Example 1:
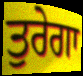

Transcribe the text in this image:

ਤੁਰੇਗਾ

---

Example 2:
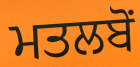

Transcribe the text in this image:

ਮਤਲਬੋਂ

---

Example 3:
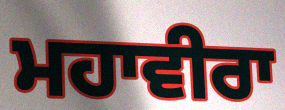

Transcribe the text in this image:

ਮਹਾਵੀਰਾ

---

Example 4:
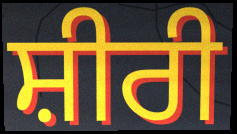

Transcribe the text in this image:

ਸ਼ੀਰੀ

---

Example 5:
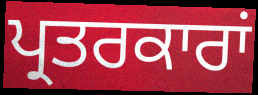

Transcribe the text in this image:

ਪ੍ਰਤਰਕਾਰਾਂ